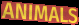
ANIMALS